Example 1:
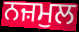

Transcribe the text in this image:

ਨਜ਼ਮੁਲ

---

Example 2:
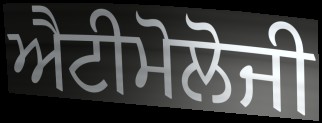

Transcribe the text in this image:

ਐਟੀਮੋਲੋਜੀ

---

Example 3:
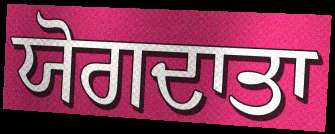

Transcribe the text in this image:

ਯੋਗਦਾਤਾ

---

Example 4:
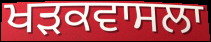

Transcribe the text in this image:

ਖੜਕਵਾਸਲਾ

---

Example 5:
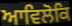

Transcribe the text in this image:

ਆਵਿਲੋਕਿ